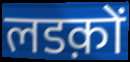
लडक़ों